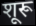
शूरू